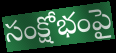
సంక్షోభంపై